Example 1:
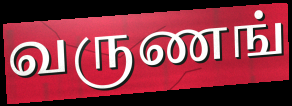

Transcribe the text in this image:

வருணங்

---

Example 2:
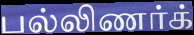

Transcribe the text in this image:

பல்லிணர்க்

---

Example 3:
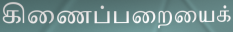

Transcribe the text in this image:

கிணைப்பறையைக்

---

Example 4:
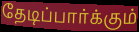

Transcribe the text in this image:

தேடிப்பார்க்கும்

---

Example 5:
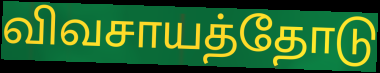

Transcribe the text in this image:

விவசாயத்தோடு